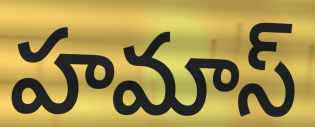
హమాస్